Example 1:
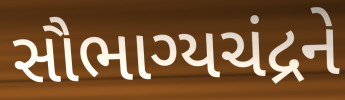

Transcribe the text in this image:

સૌભાગ્યચંદ્રને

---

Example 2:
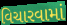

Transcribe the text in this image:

વિચારવામાં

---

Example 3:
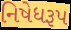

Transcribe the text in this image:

નિષેધરૂપ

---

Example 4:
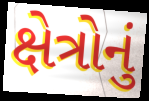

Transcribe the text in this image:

ક્ષેત્રોનું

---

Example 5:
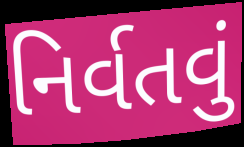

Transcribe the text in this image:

નિર્વતવું